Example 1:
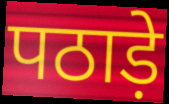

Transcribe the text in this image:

पठाड़े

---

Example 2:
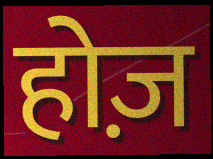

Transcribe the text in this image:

होज़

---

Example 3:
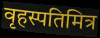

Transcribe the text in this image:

वृहस्पतिमित्र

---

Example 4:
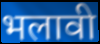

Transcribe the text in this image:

भलावी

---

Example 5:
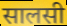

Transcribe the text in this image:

सालसी